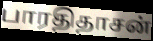
பாரதிதாசன்